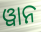
ୱାନ